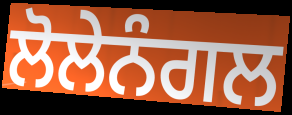
ਲੋਲੇਨੰਗਲ